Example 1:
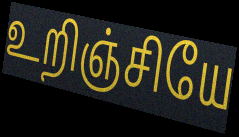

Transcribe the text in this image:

உறிஞ்சியே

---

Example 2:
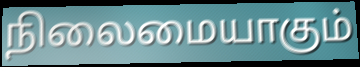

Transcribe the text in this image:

நிலைமையாகும்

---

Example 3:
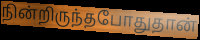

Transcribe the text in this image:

நின்றிருந்தபோதுதான்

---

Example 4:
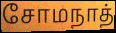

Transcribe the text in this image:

சோமநாத்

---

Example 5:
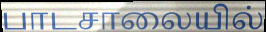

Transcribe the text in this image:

பாடசாலையில்